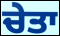
ਚੇਤਾ